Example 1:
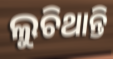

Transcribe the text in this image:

ଲୁଚିଥାନ୍ତି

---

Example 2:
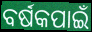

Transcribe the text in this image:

ବର୍ଷକପାଇଁ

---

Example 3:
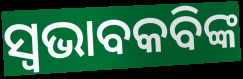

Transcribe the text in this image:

ସ୍ଵଭାବକବିଙ୍କ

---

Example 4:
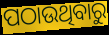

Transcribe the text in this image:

ପଠାଉଥିବାରୁ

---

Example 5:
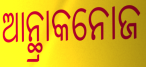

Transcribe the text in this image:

ଆନ୍ଥ୍ରାକନୋଜ